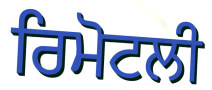
ਰਿਮੋਟਲੀ